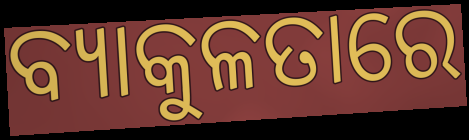
ବ୍ୟାକୁଳତାରେ